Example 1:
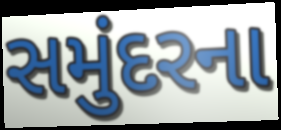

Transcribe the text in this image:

સમુંદરના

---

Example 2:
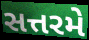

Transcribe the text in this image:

સત્તરમે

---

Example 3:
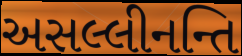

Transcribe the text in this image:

અસલ્લીનન્તિ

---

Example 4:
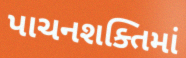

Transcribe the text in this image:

પાચનશક્તિમાં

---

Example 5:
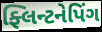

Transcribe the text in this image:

ફ્લિન્ટનેપિંગ